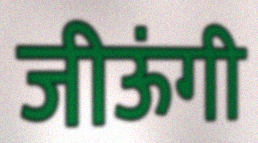
जीऊंगी